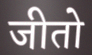
जीतो